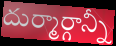
దుర్మార్గాన్నీ